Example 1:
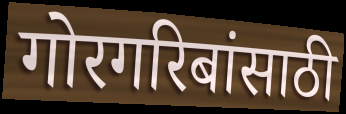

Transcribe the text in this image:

गोरगरिबांसाठी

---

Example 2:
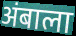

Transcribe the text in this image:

अंबाला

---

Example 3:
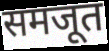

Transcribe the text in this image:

समजूत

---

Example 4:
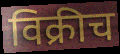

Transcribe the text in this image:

विक्रीच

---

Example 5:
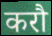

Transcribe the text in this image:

करौ